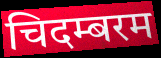
चिदम्बरम